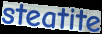
steatite